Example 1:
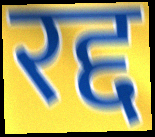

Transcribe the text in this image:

रद्द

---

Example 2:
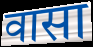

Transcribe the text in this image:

वासा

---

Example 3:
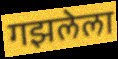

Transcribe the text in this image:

गझलेला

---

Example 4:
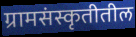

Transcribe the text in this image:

ग्रामसंस्कृतीतील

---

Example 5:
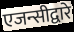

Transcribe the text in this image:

एजन्सीद्वारे